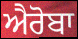
ਐਰੋਬਾ